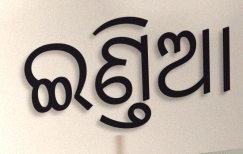
ଇଣ୍ତିଆ